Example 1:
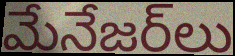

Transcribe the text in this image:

మేనేజర్‌లు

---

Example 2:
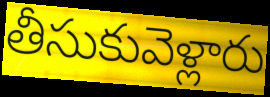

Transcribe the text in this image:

తీసుకువెళ్లారు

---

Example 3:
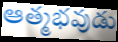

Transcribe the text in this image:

ఆత్మభవుడు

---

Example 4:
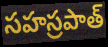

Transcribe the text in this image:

సహస్రపాత్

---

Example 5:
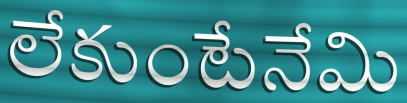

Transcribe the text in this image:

లేకుంటేనేమి